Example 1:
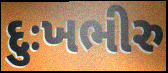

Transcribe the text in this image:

દુઃખભીરુ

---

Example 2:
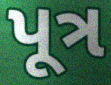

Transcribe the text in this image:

પૂત્ર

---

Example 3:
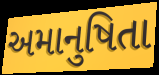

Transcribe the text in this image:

અમાનુષિતા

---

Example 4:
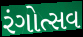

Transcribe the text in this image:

રંગોત્સવ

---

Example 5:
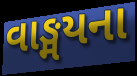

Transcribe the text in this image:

વાઙ્મયના